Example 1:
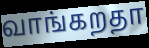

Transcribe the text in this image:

வாங்கறதா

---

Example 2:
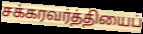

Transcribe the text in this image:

சக்கரவர்த்தியைப்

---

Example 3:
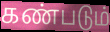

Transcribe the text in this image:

கண்படும்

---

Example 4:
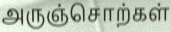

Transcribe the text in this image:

அருஞ்சொற்கள்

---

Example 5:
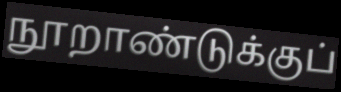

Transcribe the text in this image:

நூறாண்டுக்குப்